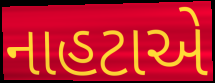
નાહટાએ